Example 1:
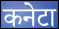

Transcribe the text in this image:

कनेटा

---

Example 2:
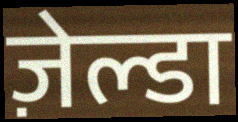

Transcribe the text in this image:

ज़ेल्डा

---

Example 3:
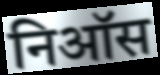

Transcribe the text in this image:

निऑस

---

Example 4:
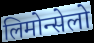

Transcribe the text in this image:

लिमोन्सेलो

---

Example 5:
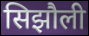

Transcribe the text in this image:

सिझौली